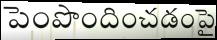
పెంపొందించడంపై